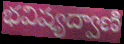
భవిష్యద్వాణి